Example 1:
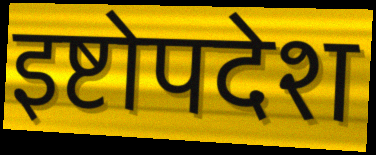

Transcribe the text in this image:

इष्टोपदेश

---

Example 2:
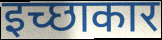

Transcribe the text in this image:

इच्छाकार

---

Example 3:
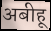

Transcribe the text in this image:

अबीहू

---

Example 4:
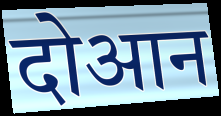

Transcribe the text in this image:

दोआन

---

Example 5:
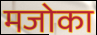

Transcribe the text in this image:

मजोका